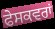
ਫੇਸਕਵਰਾਂ